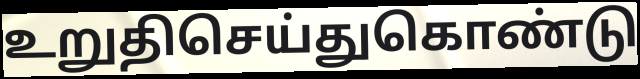
உறுதிசெய்துகொண்டு